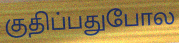
குதிப்பதுபோல